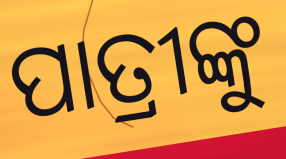
ପାତ୍ରୀଙ୍କୁ